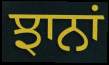
ਝਾਨਾਂ